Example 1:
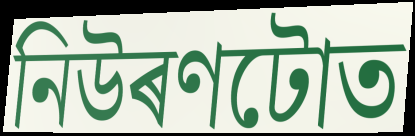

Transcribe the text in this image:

নিউৰণটোত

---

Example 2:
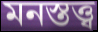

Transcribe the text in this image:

মনস্তত্ত্ব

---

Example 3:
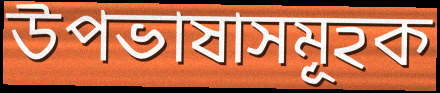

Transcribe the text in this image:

উপভাষাসমূহক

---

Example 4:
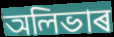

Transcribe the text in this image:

অলিভাৰ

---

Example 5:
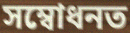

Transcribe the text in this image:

সম্বোধনত